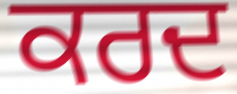
ਕਰਦ